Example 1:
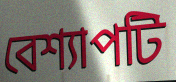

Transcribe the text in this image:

বেশ্যাপটি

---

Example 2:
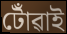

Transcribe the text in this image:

টোঁৱাই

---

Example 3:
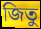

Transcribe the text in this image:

জিতু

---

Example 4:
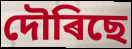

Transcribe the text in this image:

দৌৰিছে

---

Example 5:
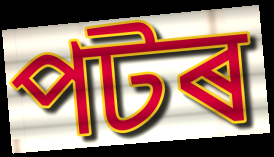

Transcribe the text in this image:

পটৰ